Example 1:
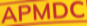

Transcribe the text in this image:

APMDC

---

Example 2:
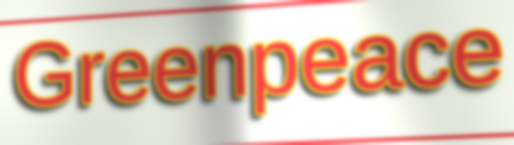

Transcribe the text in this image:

Greenpeace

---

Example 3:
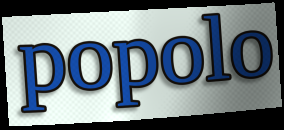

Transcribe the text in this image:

popolo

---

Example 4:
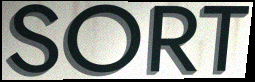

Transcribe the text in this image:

SORT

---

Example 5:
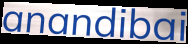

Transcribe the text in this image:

anandibai